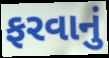
ફરવાનું